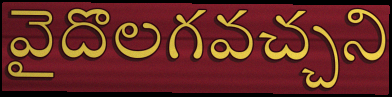
వైదొలగవచ్చని